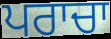
ਪਰਾਚਾ